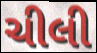
ચીલી